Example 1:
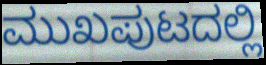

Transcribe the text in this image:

ಮುಖಪುಟದಲ್ಲಿ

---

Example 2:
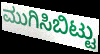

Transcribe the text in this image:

ಮುಗಿಸಿಬಿಟ್ಟು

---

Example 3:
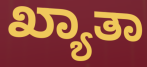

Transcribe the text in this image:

ಖ್ಯಾತಾ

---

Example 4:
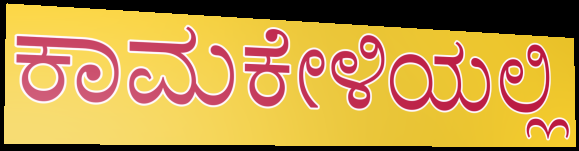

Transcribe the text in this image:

ಕಾಮಕೇಳಿಯಲ್ಲಿ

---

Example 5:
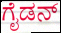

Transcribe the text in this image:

ಗೈಡನ್